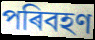
পৰিবহণ